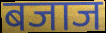
बजाज